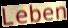
Leben